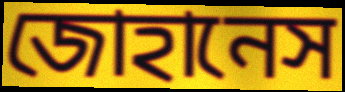
জোহানেস